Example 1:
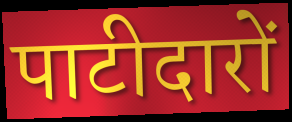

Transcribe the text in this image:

पाटीदारों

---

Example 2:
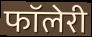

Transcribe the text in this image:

फॉलेरी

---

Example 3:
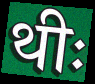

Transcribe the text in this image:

थीः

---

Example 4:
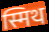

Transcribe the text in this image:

स्मिथ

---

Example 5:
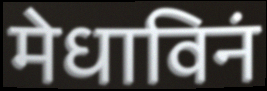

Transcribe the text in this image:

मेधाविनं